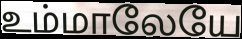
உம்மாலேயே